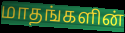
மாதங்களின்